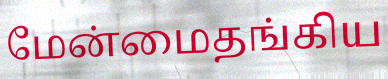
மேன்மைதங்கிய